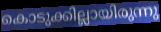
കൊടുക്കില്ലായിരുന്നു